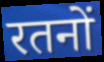
रतनों